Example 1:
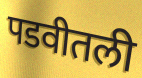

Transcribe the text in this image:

पडवीतली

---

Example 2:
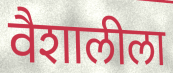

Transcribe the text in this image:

वैशालीला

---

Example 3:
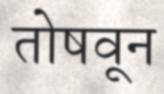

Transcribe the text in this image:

तोषवून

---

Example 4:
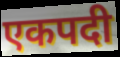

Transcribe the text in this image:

एकपदी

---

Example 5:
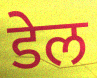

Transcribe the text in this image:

डेल